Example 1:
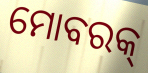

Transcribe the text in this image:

ମୋବରକ୍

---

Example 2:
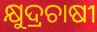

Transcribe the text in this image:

କ୍ଷୁଦ୍ରଚାଷୀ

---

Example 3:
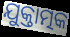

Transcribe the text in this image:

ଯୁକ୍ତାତ୍ମକ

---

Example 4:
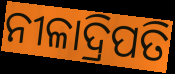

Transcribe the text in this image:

ନୀଳାଦ୍ରିପତି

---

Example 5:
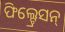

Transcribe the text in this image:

ଫିଲ୍ଟ୍ରେସନ୍